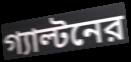
গ্যাল্টনের